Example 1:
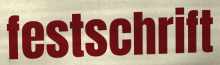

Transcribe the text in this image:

festschrift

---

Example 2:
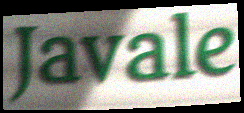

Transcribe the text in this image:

Javale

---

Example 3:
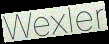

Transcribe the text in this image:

Wexler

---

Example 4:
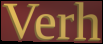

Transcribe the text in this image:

Verh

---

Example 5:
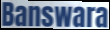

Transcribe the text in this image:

Banswara